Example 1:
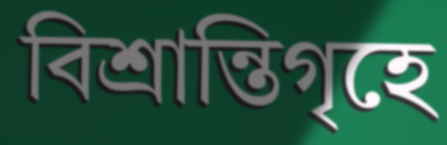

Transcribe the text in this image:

বিশ্রান্তিগৃহে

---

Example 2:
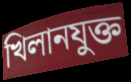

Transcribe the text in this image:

খিলানযুক্ত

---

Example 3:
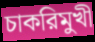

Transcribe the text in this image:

চাকরিমুখী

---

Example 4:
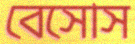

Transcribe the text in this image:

বেসোস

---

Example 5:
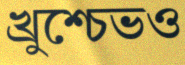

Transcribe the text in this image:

খ্রুশ্চেভও